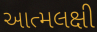
આત્મલક્ષી